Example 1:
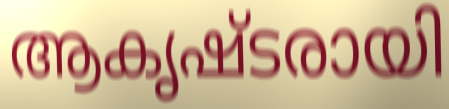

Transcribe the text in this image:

ആകൃഷ്ടരായി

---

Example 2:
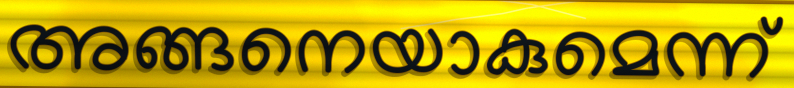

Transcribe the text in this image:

അങ്ങനെയാകുമെന്ന്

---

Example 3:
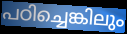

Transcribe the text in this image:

പഠിച്ചെങ്കിലും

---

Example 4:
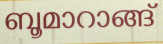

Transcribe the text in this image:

ബൂമാറാങ്ങ്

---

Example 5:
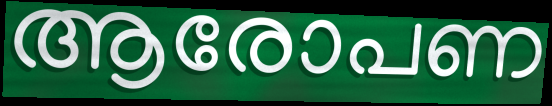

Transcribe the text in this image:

ആരോപണ